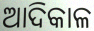
ଆଦିକାଳ